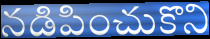
నడిపించుకొని